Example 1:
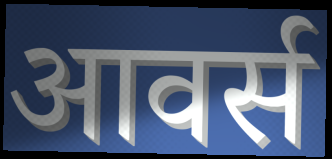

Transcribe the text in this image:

आवर्स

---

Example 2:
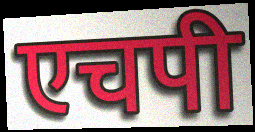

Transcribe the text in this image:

एचपी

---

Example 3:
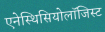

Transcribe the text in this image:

एनेस्थिसियोलॉजिस्ट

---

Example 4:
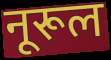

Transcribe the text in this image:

नूरूल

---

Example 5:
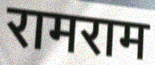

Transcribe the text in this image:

रामराम